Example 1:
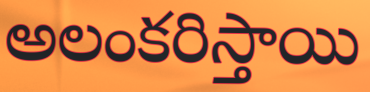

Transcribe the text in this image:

అలంకరిస్తాయి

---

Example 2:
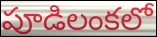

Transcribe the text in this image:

పూడిలంకలో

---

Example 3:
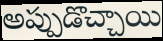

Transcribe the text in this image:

అప్పుడొచ్చాయి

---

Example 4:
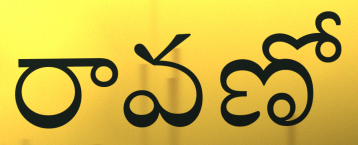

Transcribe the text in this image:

రావణో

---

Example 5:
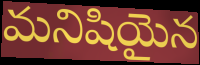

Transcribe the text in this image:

మనిషియైన